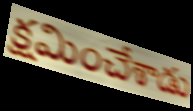
క్షమించేశాడు